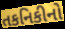
તકનિકીનો